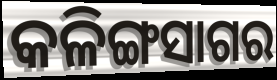
କଳିଙ୍ଗସାଗର